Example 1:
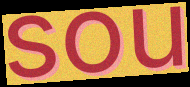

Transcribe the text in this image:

sou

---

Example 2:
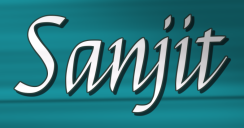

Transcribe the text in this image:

Sanjit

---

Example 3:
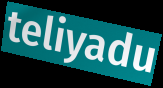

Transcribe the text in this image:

teliyadu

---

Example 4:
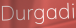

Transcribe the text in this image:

Durgadi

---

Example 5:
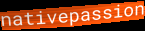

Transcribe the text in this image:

nativepassion